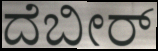
ದೆಬೀರ್